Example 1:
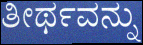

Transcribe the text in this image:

ತೀರ್ಥವನ್ನು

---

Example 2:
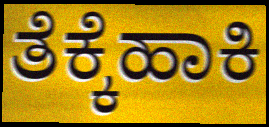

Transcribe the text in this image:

ತೆಕ್ಕೆಹಾಕಿ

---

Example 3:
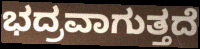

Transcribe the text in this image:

ಭದ್ರವಾಗುತ್ತದೆ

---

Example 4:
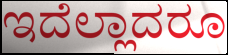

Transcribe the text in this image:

ಇದೆಲ್ಲಾದರೂ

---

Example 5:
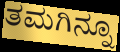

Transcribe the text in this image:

ತಮಗಿನ್ನೂ